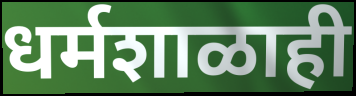
धर्मशाळाही